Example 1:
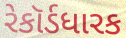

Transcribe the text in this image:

રેકૉર્ડધારક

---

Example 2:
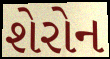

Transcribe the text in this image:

શેરોન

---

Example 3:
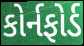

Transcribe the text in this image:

કોર્નફોર્ડ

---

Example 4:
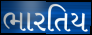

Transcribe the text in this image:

ભારતિય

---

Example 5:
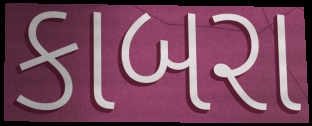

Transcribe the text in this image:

કાબરા